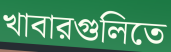
খাবারগুলিতে